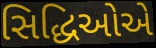
સિદ્ધિઓએ